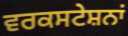
ਵਰਕਸਟੇਸ਼ਨਾਂ